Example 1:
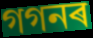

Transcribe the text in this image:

গগনৰ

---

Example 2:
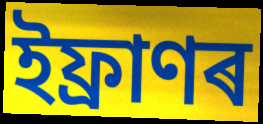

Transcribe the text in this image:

ইফ্ৰাণৰ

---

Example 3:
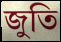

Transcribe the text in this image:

জুতি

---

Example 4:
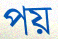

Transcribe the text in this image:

পয়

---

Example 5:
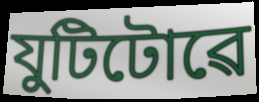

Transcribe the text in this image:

যুটিটোৱে